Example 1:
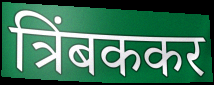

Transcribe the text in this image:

त्रिंबककर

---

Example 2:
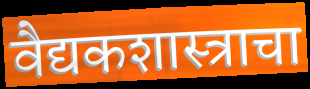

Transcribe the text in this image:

वैद्यकशास्त्राचा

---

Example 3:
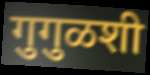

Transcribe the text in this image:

गुगुळशी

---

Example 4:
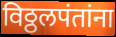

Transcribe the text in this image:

विठ्ठलपंतांना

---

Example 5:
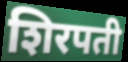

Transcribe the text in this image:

शिरपती